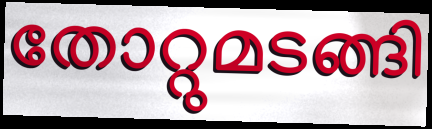
തോറ്റുമടങ്ങി